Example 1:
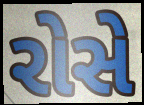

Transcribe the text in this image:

રોસે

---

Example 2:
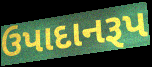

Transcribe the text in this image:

ઉપાદાનરૂપ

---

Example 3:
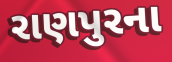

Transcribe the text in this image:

રાણપુરના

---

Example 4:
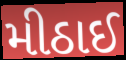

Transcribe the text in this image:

મીઠાઈ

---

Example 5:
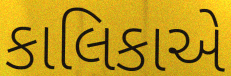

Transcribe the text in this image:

કાલિકાએ